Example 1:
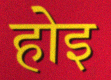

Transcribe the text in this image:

होइ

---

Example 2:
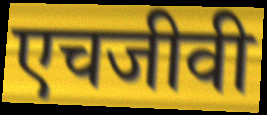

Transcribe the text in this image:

एचजीवी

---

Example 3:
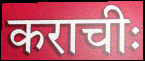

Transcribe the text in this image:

कराचीः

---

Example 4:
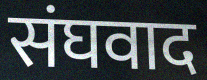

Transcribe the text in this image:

संघवाद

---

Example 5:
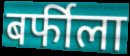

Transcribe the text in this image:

बर्फीला